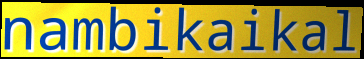
nambikaikal